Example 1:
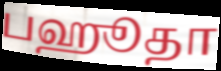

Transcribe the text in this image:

பஹூதா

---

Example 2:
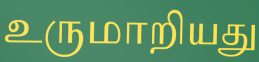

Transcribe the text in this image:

உருமாறியது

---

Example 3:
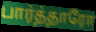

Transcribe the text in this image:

பார்த்தாரோ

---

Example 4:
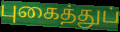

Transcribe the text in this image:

புகைத்துப்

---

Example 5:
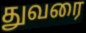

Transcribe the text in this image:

துவரை